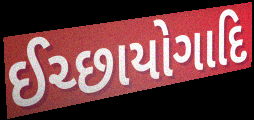
ઈચ્છાયોગાદિ